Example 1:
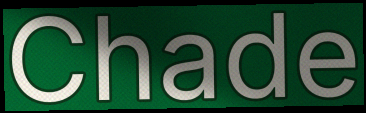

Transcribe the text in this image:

Chade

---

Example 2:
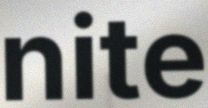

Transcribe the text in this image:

nite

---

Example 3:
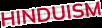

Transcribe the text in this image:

HINDUISM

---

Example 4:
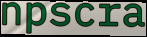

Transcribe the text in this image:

npscra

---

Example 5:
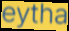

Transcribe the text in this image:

eytha